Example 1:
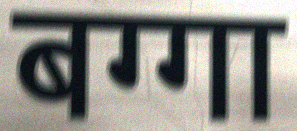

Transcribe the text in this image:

बग्गा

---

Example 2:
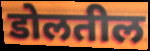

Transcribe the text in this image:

डोलतील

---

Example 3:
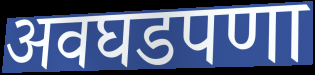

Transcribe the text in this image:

अवघडपणा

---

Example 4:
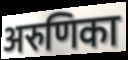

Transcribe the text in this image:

अरुणिका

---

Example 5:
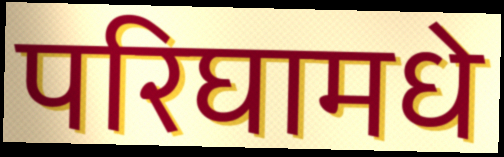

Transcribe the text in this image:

परिघामधे